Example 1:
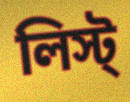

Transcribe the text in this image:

লিস্ট্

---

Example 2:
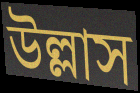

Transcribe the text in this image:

উল্লাস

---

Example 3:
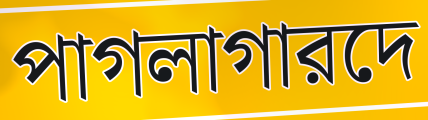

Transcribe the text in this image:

পাগলাগারদে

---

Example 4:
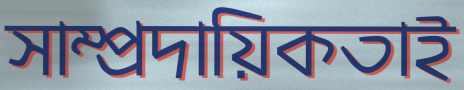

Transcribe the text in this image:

সাম্প্রদায়িকতাই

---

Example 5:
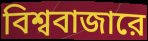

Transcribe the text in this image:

বিশ্ববাজারে